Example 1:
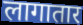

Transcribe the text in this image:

लागातार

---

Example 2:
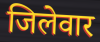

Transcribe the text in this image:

जिलेवार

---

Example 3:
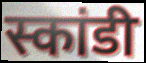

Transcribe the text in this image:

स्कांडी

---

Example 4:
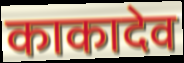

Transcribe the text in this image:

काकादेव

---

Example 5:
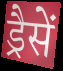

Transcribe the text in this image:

ड्रैसें